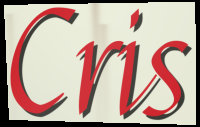
Cris